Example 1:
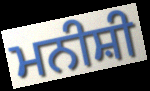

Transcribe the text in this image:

ਮਨੀਸ਼ੀ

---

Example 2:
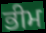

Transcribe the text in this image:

ਭੀਮ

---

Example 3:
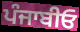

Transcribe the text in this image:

ਪੰਜਾਬੀਓ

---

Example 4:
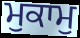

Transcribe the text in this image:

ਮੁਕਾਮੁ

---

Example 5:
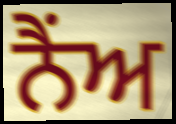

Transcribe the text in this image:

ਨੈਂਅ